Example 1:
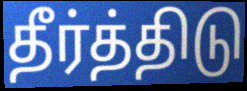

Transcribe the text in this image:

தீர்த்திடு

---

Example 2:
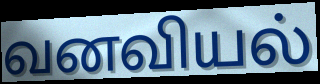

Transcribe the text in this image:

வனவியல்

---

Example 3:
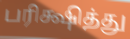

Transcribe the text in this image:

பரிக்ஷித்து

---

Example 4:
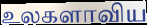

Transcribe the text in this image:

உலகளாவிய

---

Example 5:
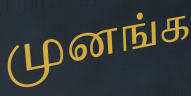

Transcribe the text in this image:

முனங்க